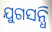
ଯୁଗସନ୍ଧି